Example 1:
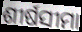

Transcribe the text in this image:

ଶୀର୍ଷସୀମା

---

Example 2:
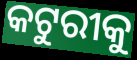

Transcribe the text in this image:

କଟୁରୀକୁ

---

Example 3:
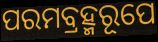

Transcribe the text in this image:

ପରମବ୍ରହ୍ମରୂପେ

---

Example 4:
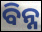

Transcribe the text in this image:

ବିନ୍ନ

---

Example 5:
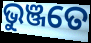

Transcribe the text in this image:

ଭୁଞ୍ଜତେ